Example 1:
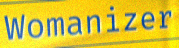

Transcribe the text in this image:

Womanizer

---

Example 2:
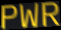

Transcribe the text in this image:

PWR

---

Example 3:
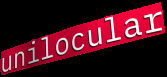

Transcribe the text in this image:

unilocular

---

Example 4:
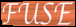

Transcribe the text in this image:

FUSE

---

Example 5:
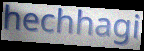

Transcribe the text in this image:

hechhagi